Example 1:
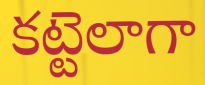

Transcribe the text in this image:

కట్టెలాగా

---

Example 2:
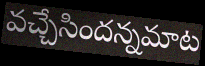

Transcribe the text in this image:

వచ్చేసిందన్నమాట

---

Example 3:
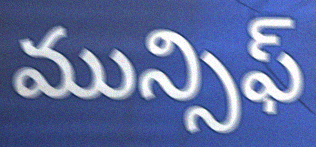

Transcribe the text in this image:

మున్సిఫ్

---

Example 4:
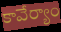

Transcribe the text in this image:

కావేర్యాం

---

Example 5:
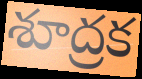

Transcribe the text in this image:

శూద్రక